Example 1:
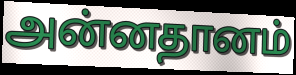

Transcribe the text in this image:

அன்னதானம்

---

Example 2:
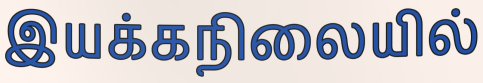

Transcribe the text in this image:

இயக்கநிலையில்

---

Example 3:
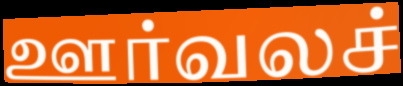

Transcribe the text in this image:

ஊர்வலச்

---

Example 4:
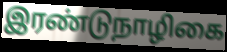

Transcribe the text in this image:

இரண்டுநாழிகை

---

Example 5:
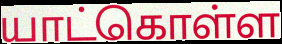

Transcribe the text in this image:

யாட்கொள்ள